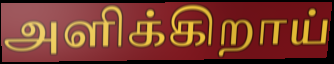
அளிக்கிறாய்